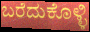
ಬರೆದುಕೊಳ್ಳಿ